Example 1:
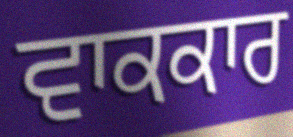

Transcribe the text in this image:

ਵਾਕਕਾਰ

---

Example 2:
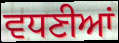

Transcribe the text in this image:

ਵਧਣੀਆਂ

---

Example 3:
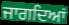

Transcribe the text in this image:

ਜਾਗਦਿਆਂ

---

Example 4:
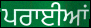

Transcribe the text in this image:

ਪਰਾਈਆਂ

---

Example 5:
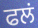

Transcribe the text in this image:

ਫਲਂ